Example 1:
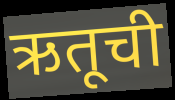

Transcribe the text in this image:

ऋतूची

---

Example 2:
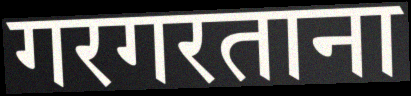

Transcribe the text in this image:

गरगरताना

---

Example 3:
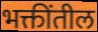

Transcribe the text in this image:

भक्तींतील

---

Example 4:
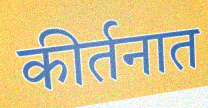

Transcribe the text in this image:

कीर्तनात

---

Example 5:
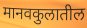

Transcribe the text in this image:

मानवकुलातील